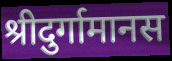
श्रीदुर्गामानस